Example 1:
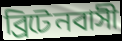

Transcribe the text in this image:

ব্রিটেনবাসী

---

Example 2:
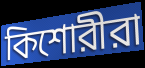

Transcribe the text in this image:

কিশোরীরা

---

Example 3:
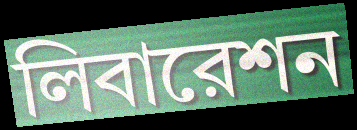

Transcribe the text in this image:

লিবারেশন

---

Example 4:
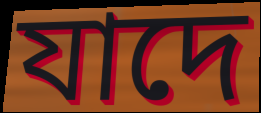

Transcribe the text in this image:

যাদে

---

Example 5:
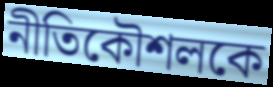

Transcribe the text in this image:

নীতিকৌশলকে